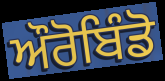
ਔਰੋਬਿੰਡੋ